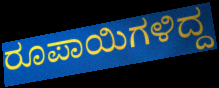
ರೂಪಾಯಿಗಳಿದ್ದ